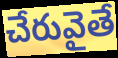
చేరువైతే